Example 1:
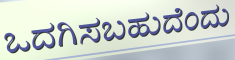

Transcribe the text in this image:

ಒದಗಿಸಬಹುದೆಂದು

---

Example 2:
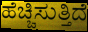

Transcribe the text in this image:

ಹೆಚ್ಚಿಸುತ್ತಿದೆ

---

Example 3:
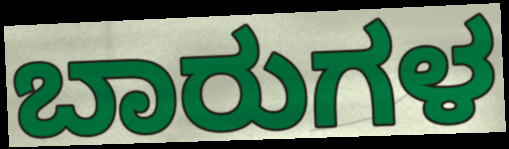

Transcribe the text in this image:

ಬಾರುಗಳ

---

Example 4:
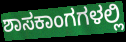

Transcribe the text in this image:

ಶಾಸಕಾಂಗಗಳಲ್ಲಿ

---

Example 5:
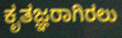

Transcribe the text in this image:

ಕೃತಜ್ಞರಾಗಿರಲು